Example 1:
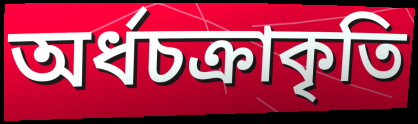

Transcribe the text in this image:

অর্ধচক্রাকৃতি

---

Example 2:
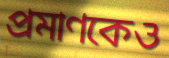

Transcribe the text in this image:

প্রমাণকেও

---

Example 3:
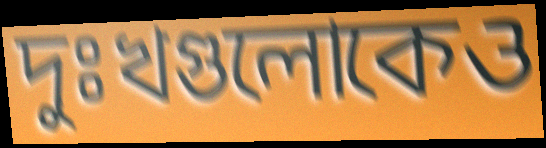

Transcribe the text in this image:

দুঃখগুলোকেও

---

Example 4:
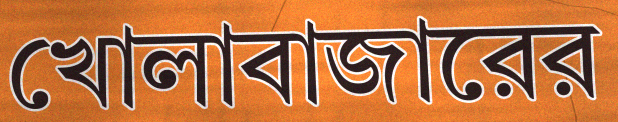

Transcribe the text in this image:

খোলাবাজারের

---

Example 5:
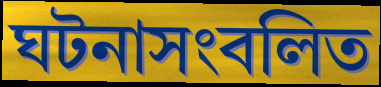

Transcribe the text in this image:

ঘটনাসংবলিত